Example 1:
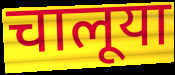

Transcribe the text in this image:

चालूया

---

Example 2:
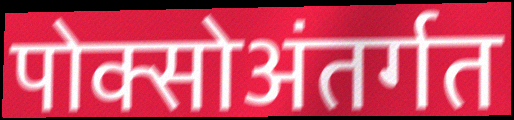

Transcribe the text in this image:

पोक्सोअंतर्गत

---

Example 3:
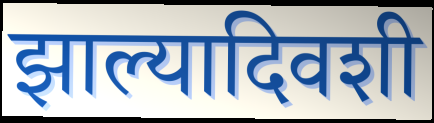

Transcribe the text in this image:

झाल्यादिवशी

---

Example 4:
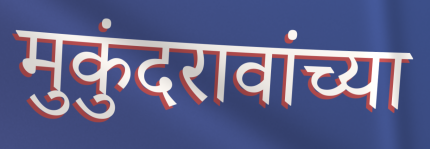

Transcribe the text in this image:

मुकुंदरावांच्या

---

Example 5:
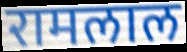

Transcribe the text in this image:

रामलाल